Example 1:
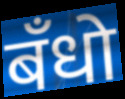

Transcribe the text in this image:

बँधो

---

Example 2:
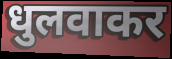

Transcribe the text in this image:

धुलवाकर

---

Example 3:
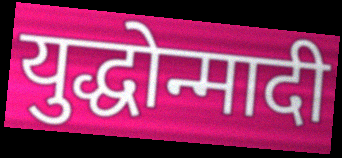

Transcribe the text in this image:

युद्धोन्मादी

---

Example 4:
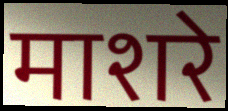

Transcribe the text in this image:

माशरे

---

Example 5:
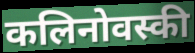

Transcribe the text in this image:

कलिनोवस्की